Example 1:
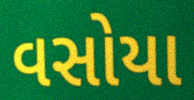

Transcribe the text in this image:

વસોયા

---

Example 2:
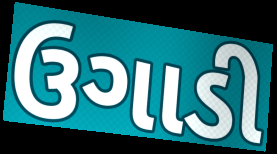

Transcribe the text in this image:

ઉગાડી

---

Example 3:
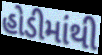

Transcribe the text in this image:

હોડીમાંથી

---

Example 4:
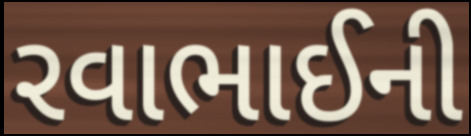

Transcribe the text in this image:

રવાભાઈની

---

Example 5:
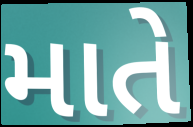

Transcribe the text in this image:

માતે